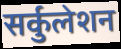
सर्कुलेशन